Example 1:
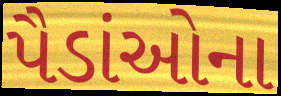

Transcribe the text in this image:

પૈડાંઓના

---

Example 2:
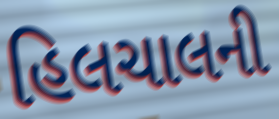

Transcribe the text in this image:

હિલચાલની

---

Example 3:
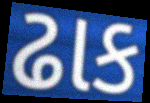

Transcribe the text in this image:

ઢાક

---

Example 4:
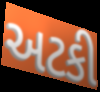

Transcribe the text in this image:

અટકી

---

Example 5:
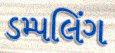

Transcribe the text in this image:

ડમ્પલિંગ